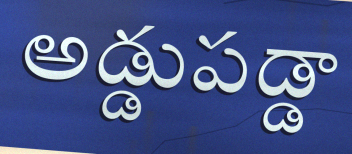
అడ్డుపడ్డా